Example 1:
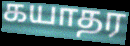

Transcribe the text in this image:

கயாதர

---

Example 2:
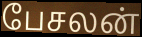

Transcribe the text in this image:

பேசலன்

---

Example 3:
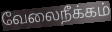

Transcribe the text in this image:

வேலைநீக்கம்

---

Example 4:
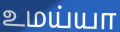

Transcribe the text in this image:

உமய்யா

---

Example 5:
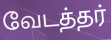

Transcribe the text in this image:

வேடத்தர்